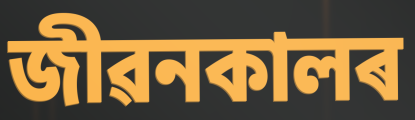
জীৱনকালৰ